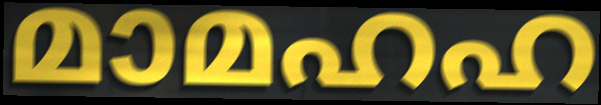
മാമഹഹ